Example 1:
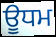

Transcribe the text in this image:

ਊਧਮ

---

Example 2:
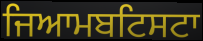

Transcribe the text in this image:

ਜਿਆਮਬਟਿਸਟਾ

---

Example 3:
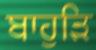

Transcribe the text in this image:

ਬਾਹੁੜਿ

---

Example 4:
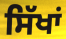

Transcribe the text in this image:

ਸਿੱਖਾਂ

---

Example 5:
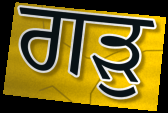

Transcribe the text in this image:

ਗੜੁ